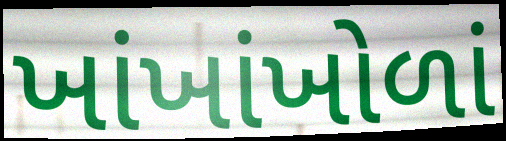
ખાંખાંખોળાં